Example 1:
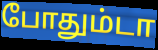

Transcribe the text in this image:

போதும்டா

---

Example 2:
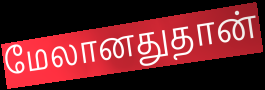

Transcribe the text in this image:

மேலானதுதான்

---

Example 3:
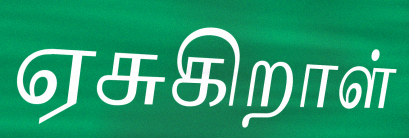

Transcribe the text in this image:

ஏசுகிறாள்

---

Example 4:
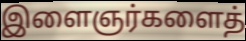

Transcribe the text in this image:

இளைஞர்களைத்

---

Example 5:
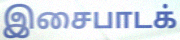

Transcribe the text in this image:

இசைபாடக்